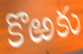
కొఱకు